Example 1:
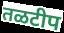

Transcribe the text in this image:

तळटीप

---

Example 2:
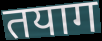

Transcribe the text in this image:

तयाग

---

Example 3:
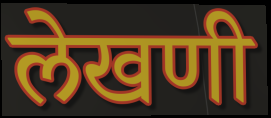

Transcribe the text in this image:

लेखणी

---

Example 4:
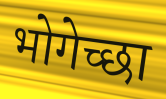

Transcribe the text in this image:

भोगेच्छा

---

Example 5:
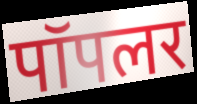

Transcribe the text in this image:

पॉपलर